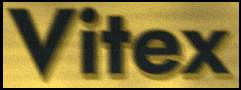
Vitex